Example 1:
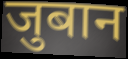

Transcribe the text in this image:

जुबान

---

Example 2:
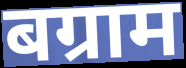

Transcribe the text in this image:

बग्राम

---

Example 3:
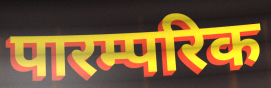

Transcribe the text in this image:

पारम्परिक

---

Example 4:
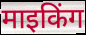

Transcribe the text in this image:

माइकिंग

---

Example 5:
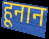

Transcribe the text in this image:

हूनान